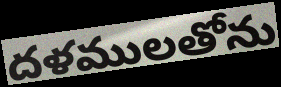
దళములతోను